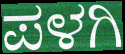
ಪಳಗಿ